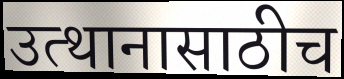
उत्थानासाठीच